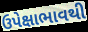
ઉપેક્ષાભાવથી